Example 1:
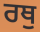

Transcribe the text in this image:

ਰਥੁ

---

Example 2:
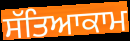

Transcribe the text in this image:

ਸੱਤਿਆਕਾਮ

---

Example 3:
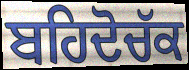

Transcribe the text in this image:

ਬਹਿਦੋਚੱਕ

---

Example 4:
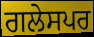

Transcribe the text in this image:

ਗਲੇਸਪਰ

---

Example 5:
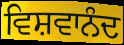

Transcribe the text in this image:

ਵਿਸ਼ਵਾਨੰਦ